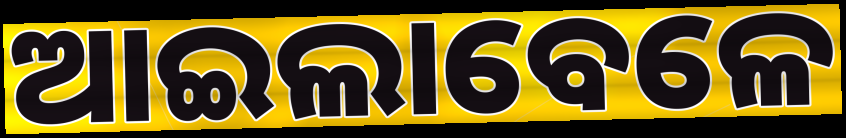
ଆଇଲାବେଳେ